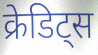
क्रेडिट्स